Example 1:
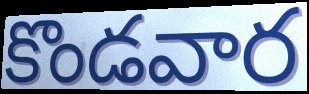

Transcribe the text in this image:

కొండవార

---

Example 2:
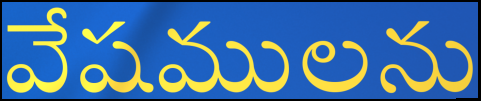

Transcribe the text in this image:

వేషములను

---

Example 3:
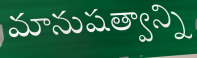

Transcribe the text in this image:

మానుషత్వాన్ని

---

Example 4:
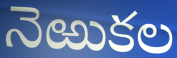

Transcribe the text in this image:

నెఱుకల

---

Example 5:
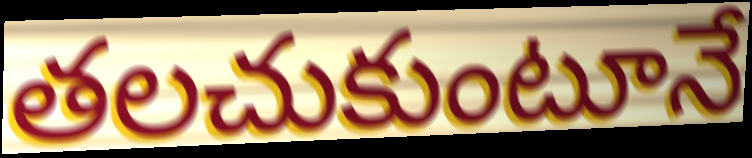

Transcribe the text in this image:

తలచుకుంటూనే